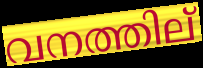
വനത്തില്